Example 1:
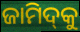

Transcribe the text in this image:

ଜାମିଦ୍‌କୁ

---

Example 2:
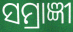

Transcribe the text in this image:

ସମ୍ରାଜ୍ଞୀ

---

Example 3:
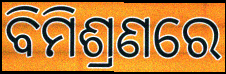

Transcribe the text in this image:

ବିମିଶ୍ରଣରେ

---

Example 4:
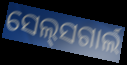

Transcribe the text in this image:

ସେଲ୍‍ସଗାର୍ଲ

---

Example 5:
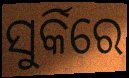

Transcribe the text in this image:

ସୁର୍କିରେ